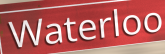
Waterloo